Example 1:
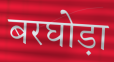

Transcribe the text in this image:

बरघोड़ा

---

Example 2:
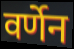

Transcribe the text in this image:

वर्णेन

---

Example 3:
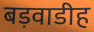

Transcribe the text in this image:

बड़वाडीह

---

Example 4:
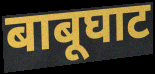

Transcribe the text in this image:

बाबूघाट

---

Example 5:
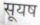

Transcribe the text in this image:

सूयष